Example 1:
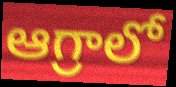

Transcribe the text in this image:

ఆగ్రాలో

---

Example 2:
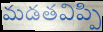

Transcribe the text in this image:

మడతవిప్పి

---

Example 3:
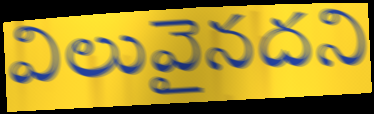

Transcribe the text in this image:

విలువైనదని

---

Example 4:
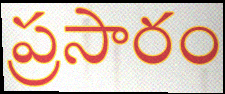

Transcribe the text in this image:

ప్రసారం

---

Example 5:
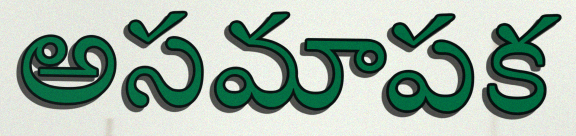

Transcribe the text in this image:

అసమాపక